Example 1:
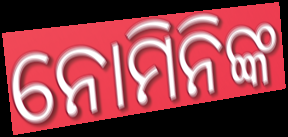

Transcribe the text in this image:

ନୋମିନିଙ୍କ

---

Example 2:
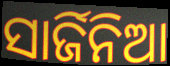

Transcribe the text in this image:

ସାର୍ଜିନିଆ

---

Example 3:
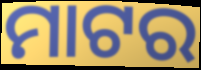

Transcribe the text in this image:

ମାଟର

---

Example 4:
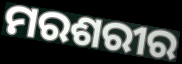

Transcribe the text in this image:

ମରଶରୀର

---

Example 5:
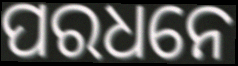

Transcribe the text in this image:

ପରଧନେ